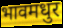
भावमधुर